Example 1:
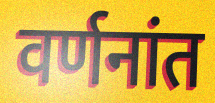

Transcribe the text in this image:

वर्णनांत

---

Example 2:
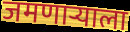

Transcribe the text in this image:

जमणाऱ्याला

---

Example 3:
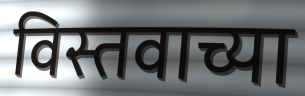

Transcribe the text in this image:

विस्तवाच्या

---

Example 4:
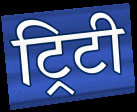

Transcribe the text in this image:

ट्रिटी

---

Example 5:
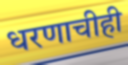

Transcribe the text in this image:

धरणाचीही